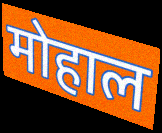
मोहाल